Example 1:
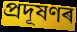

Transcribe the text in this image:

প্ৰদূষণৰ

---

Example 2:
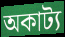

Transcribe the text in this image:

অকাট্য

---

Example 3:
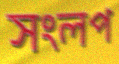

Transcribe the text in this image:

সংলপ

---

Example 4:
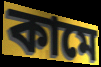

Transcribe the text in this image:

কামে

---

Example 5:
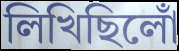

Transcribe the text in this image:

লিখিছিলোঁ